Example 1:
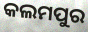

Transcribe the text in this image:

କଲମପୁର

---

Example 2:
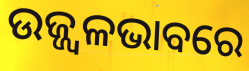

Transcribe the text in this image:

ଉଜ୍ଜ୍ୱଳଭାବରେ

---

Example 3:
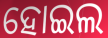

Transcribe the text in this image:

ହୋଇଲ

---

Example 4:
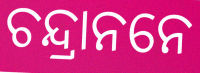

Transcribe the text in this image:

ଚନ୍ଦ୍ରାନନେ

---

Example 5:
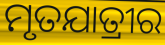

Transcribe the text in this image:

ମୃତଯାତ୍ରୀର